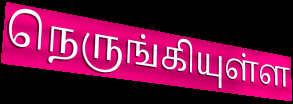
நெருங்கியுள்ள